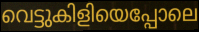
വെട്ടുകിളിയെപ്പോലെ